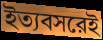
ইত্যবসরেই